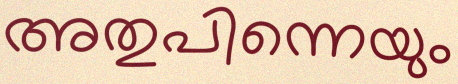
അതുപിന്നെയും